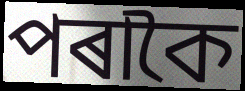
পৰাকৈ